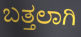
ಬತ್ತಲಾಗಿ